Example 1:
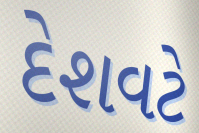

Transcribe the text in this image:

દેશવટે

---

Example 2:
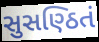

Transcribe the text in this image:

સુસણ્ઠિતં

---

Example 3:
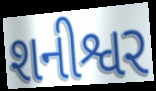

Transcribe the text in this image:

શનીશ્વર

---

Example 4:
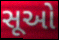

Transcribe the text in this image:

સૂઓ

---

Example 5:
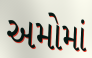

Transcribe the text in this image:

અમોમાં